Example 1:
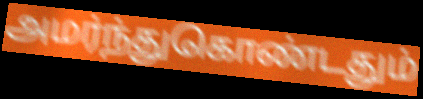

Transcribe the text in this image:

அமர்ந்துகொண்டதும்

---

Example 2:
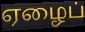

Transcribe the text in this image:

ஏழைப்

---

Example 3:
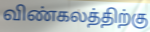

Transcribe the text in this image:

விண்கலத்திற்கு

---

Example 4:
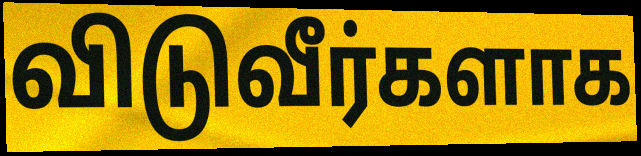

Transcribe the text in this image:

விடுவீர்களாக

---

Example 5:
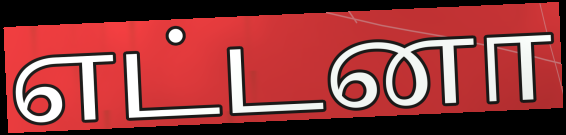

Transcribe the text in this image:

எட்டனா